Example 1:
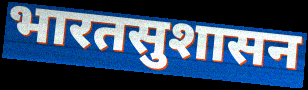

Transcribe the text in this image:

भारतसुशासन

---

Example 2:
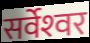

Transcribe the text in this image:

सर्वेश्‍वर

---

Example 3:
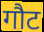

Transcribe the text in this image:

गौट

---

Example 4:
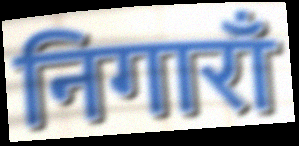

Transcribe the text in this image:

निगाराँ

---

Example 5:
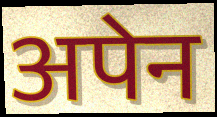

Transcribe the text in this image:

अपेन